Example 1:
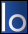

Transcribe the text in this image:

lo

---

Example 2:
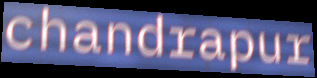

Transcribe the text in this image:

chandrapur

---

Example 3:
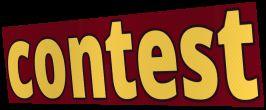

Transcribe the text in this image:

contest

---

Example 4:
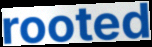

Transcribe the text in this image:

rooted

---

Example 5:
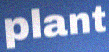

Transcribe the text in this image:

plant